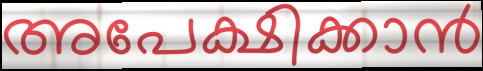
അപേക്ഷിക്കാൻ